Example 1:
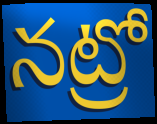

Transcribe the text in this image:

నట్రో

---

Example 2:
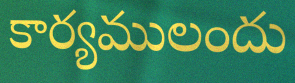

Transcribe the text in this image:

కార్యములందు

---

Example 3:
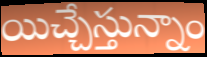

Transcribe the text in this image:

యిచ్చేస్తున్నాం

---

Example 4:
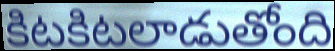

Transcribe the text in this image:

కిటకిటలాడుతోంది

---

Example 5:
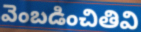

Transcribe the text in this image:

వెంబడించితివి